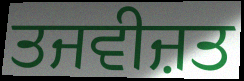
ਤਜਵੀਜ਼ਤ